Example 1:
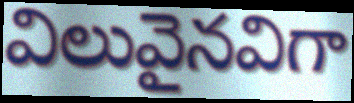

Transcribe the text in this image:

విలువైనవిగా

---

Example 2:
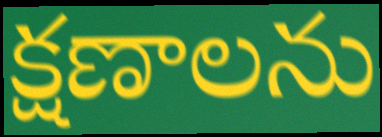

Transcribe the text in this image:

క్షణాలను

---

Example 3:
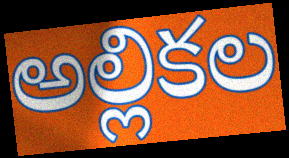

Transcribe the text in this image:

అల్లికల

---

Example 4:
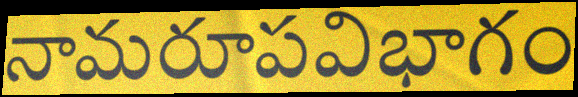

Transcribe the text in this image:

నామరూపవిభాగం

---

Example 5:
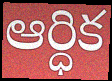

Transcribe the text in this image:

ఆర్ధిక